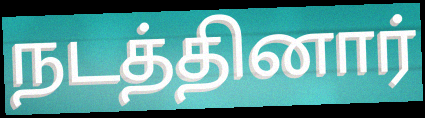
நடத்தினார்